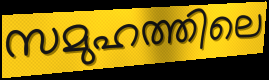
സമുഹത്തിലെ